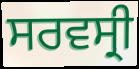
ਸਰਵਸ੍ਰੀ